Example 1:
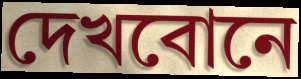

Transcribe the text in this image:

দেখবোনে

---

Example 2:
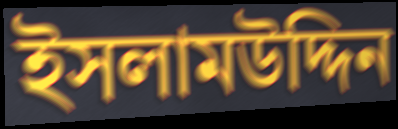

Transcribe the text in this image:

ইসলামউদ্দিন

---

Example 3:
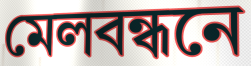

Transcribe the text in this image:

মেলবন্ধনে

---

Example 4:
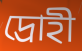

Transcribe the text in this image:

দ্রোহী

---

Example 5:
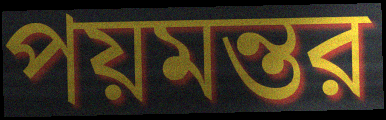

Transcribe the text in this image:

পয়মন্তর